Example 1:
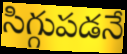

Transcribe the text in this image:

సిగ్గుపడనే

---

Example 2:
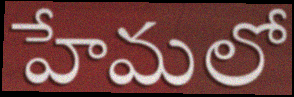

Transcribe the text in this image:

హేమలో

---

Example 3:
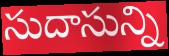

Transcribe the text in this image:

సుదాసున్ని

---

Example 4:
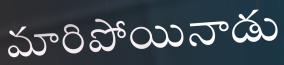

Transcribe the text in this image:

మారిపోయినాడు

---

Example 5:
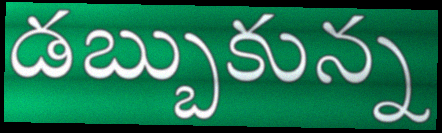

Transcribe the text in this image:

డబ్బుకున్న